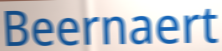
Beernaert